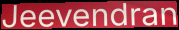
Jeevendran